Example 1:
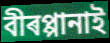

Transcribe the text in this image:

বীৰপ্পানাই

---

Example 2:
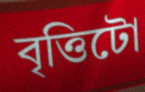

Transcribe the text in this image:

বৃত্তিটো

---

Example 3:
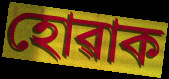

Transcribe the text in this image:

হোৱাক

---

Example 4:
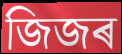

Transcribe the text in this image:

জিজৰ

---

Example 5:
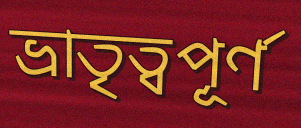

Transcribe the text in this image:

ভ্ৰাতৃত্বপূৰ্ণ